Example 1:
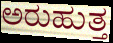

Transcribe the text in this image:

ಅರುಹುತ್ತ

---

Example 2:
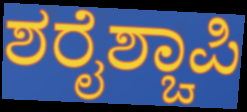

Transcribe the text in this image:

ಶರೈಶ್ಚಾಪಿ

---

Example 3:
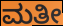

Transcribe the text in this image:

ಮತೀ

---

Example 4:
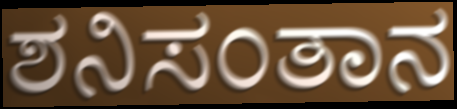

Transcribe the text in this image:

ಶನಿಸಂತಾನ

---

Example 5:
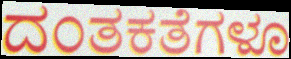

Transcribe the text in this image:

ದಂತಕತೆಗಳೂ